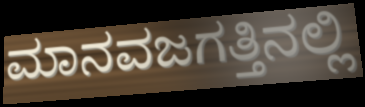
ಮಾನವಜಗತ್ತಿನಲ್ಲಿ